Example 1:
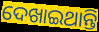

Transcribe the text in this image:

ଦେଖାଇଥାନ୍ତି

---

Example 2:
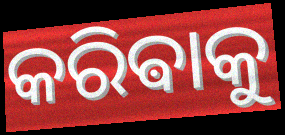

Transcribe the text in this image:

କରିଵାକୁ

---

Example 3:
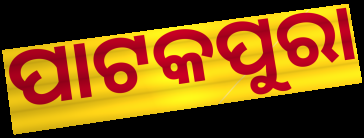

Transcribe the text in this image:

ପାଟକପୁରା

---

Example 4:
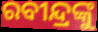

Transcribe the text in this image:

ରବୀନ୍ଦ୍ରଙ୍କୁ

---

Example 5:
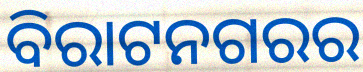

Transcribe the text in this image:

ବିରାଟନଗରର